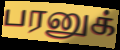
பரனுக்